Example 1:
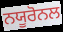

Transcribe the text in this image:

ਨਯੂਰੋਨਲ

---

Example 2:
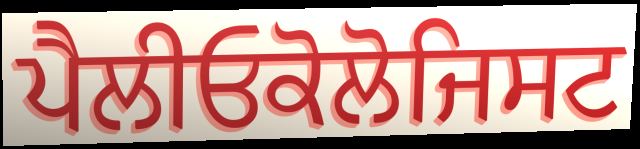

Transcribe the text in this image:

ਪੈਲੀਓਕੋਲੋਜਿਸਟ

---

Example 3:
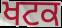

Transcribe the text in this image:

ਖਟਕ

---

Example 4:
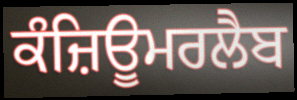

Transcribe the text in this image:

ਕੰਜ਼ਿਊਮਰਲੈਬ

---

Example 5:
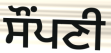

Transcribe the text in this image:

ਸੌਂਪਣੀ